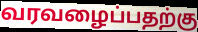
வரவழைப்பதற்கு